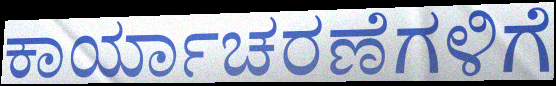
ಕಾರ್ಯಾಚರಣೆಗಳಿಗೆ